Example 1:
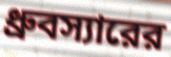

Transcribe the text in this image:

ধ্রুবস্যারের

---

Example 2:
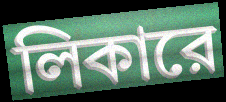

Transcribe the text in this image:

লিকারে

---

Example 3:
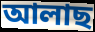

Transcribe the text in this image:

আলাছ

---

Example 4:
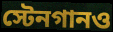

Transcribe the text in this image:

স্টেনগানও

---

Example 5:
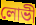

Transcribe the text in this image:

লোভী